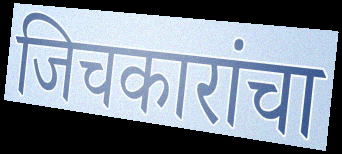
जिचकारांचा